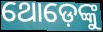
ଥୋଡ଼େଙ୍କୁ